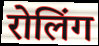
रोलिंग